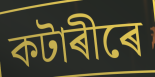
কটাৰীৰে